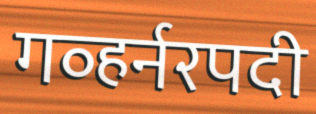
गव्हर्नरपदी